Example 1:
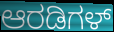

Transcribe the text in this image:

ಆರಡಿಗಳ್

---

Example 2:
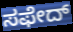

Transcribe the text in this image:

ಸಫೇದ್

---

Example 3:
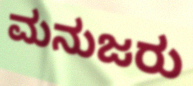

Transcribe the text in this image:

ಮನುಜರು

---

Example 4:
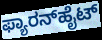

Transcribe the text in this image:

ಫ್ಯಾರನ್‌ಹೈಟ್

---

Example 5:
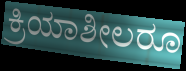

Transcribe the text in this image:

ಕ್ರಿಯಾಶೀಲರೂ